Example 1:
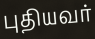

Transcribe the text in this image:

புதியவர்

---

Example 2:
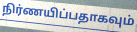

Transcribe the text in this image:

நிர்ணயிப்பதாகவும்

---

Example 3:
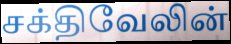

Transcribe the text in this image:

சக்திவேலின்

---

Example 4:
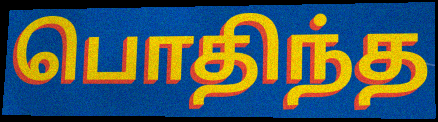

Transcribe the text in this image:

பொதிந்த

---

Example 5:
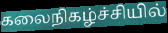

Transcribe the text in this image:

கலைநிகழ்ச்சியில்